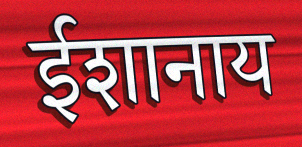
ईशानाय